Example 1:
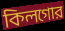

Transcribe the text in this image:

কিলগোর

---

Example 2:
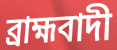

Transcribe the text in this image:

ব্রাহ্মবাদী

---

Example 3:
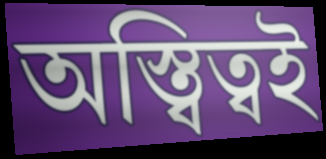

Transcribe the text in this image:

অস্ত্বিত্বই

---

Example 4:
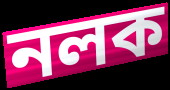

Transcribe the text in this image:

নলক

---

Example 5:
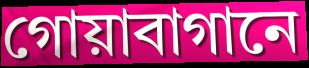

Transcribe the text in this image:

গোয়াবাগানে